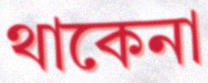
থাকেনা